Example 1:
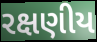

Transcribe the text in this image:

રક્ષણીય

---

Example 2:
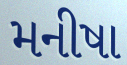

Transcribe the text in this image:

મનીષા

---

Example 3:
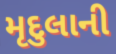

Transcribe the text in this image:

મૃદુલાની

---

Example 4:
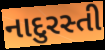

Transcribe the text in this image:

નાદુરસ્તી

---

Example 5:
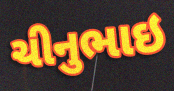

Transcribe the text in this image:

ચીનુભાઇ